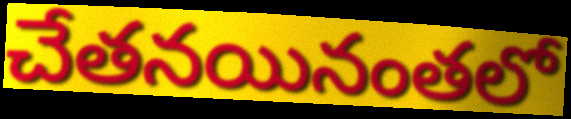
చేతనయినంతలో